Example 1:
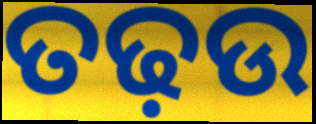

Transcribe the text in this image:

ତଢ଼ଉ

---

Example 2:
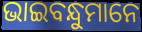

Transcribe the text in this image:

ଭାଇବନ୍ଧୁମାନେ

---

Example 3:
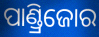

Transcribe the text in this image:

ପାଣ୍ଡ୍ରିଜୋର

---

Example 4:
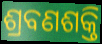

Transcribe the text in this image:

ଶ୍ରବଣଶକ୍ତି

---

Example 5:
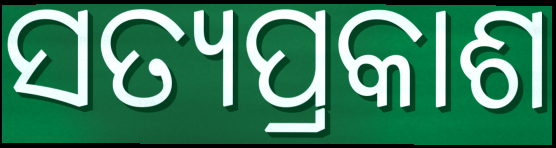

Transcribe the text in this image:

ସତ୍ୟପ୍ରକାଶ